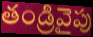
తండ్రివైపు